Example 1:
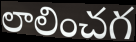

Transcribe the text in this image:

లాలించగ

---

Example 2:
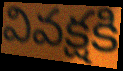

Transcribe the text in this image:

వివక్షకి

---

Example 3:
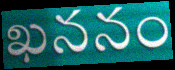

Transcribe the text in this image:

ఖననం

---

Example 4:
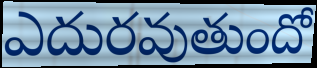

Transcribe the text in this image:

ఎదురవుతుందో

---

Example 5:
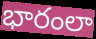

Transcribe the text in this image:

భారంలా